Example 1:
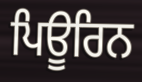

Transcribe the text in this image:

ਪਿਊਰਿਨ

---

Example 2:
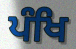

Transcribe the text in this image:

ਪੰਖਿ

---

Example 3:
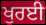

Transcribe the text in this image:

ਖੁਰਈ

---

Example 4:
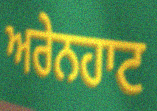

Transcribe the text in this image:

ਅਰੇਨਹਾਟ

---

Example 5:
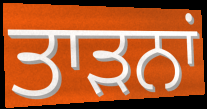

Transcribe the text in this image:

ਤਾੜਨਾਂ